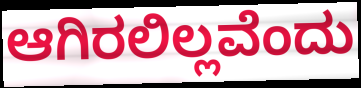
ಆಗಿರಲಿಲ್ಲವೆಂದು